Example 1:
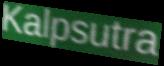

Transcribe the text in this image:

Kalpsutra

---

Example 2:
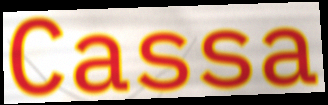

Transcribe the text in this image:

Cassa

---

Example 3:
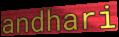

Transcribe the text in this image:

andhari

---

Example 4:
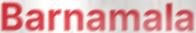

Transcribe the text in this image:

Barnamala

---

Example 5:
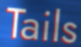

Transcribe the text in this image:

Tails